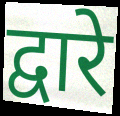
द्वारे